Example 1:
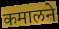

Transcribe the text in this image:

कमालने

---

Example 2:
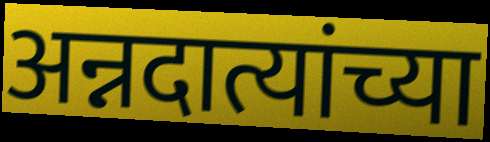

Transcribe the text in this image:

अन्नदात्यांच्या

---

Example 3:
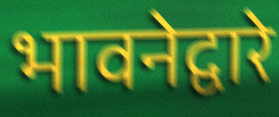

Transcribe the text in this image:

भावनेद्वारे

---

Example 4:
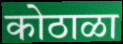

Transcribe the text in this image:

कोठाळा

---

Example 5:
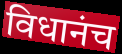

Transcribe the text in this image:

विधानंच